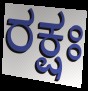
ರಕ್ಷಃ